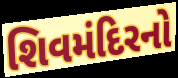
શિવમંદિરનો